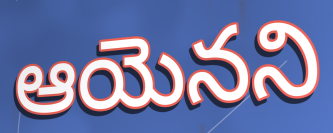
ఆయెనని